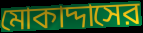
মোকাদ্দাসের